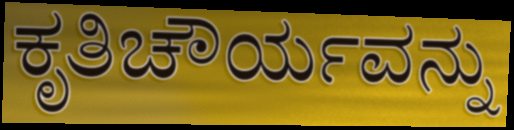
ಕೃತಿಚೌರ್ಯವನ್ನು